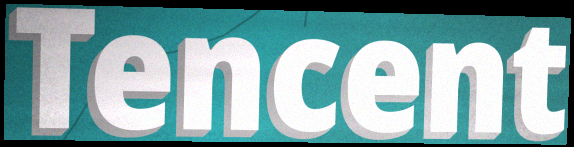
Tencent